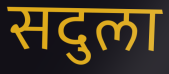
सदुला